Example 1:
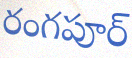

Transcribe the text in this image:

రంగపూర్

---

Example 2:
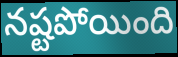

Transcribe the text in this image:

నష్టపోయింది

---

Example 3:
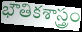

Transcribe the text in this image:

భౌతికశాస్త్రం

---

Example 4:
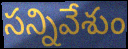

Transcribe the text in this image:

సన్నివేశుం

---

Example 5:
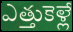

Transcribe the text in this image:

ఎత్తుకెళ్లే